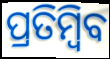
ପ୍ରତିମ୍ବିବ